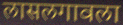
लासलगावला